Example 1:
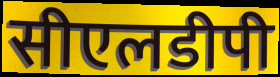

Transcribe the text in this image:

सीएलडीपी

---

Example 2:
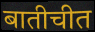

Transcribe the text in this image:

बातीचीत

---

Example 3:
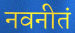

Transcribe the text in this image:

नवनीतं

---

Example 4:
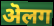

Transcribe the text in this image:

ऄलग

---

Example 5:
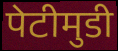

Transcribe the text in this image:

पेटीमुडी